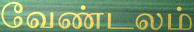
வேண்டலம்